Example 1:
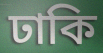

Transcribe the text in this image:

ঢাকি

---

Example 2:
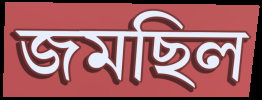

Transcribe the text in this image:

জমছিল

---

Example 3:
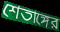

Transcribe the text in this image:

শেতাঙ্গের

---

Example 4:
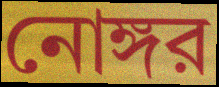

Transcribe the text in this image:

নোঙ্গর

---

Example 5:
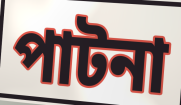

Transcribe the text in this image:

পাটনা